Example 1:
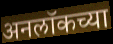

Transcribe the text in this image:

अनलॉकच्या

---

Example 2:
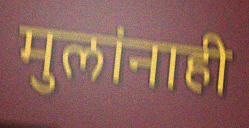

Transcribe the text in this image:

मुलांनाही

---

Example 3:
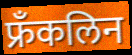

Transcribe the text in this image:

फ्रँकलिन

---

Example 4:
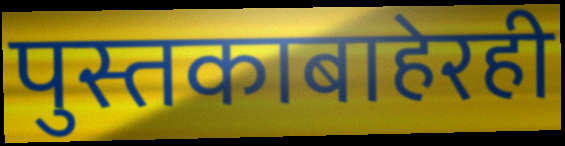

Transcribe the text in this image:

पुस्तकाबाहेरही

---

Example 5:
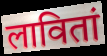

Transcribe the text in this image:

लावितां